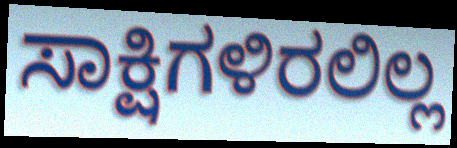
ಸಾಕ್ಷಿಗಳಿರಲಿಲ್ಲ